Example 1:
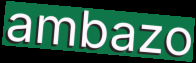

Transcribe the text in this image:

ambazo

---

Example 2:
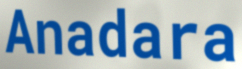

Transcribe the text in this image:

Anadara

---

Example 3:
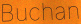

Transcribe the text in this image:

Buchan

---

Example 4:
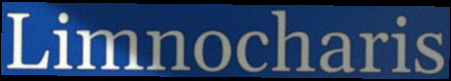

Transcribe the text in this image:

Limnocharis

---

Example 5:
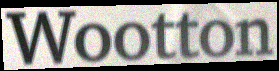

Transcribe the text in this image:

Wootton